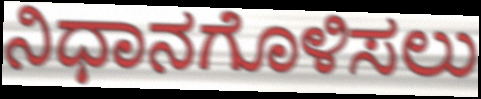
ನಿಧಾನಗೊಳಿಸಲು